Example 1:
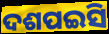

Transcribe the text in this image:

ଦଶପଇସି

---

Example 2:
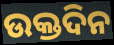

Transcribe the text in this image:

ଉକ୍ତଦିନ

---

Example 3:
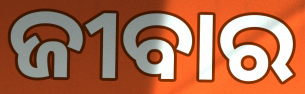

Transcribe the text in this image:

ଜୀବାର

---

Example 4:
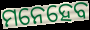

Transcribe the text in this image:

ମନେହେବ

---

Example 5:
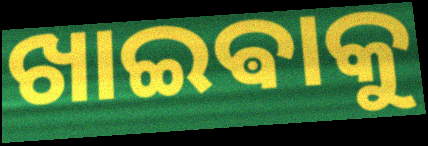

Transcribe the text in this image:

ଖାଇଵାକୁ